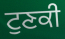
ਟੁਣਕੀ